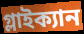
গ্লাইক্যান